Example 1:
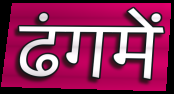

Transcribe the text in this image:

ढंगमें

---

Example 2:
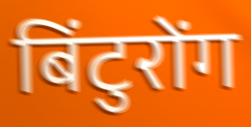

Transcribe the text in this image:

बिंटुरोंग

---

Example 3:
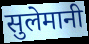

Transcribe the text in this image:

सुलेमानी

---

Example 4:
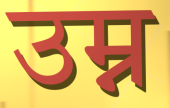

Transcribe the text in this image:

उम्न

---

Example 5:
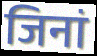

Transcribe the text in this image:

जिनां